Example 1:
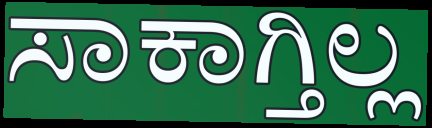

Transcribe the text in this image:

ಸಾಕಾಗ್ತಿಲ್ಲ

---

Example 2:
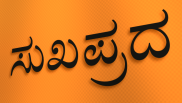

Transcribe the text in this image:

ಸುಖಪ್ರದ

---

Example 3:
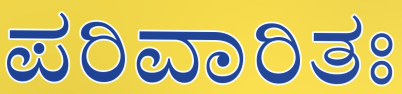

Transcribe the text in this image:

ಪರಿವಾರಿತಃ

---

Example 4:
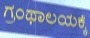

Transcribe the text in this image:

ಗ್ರಂಥಾಲಯಕ್ಕೆ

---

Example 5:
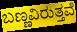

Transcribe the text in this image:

ಬಣ್ಣವಿರುತ್ತವೆ